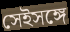
সেইসঙ্গে